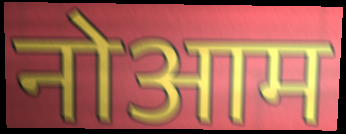
नोआम